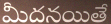
మీదనయితే